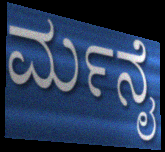
ರ್ಮನೈ